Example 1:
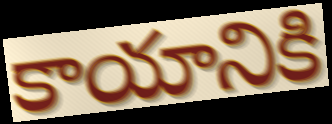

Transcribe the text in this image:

కాయానికి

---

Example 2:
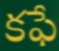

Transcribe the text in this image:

కఫే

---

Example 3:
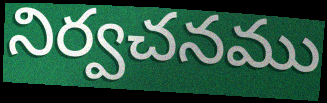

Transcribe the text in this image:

నిర్వచనము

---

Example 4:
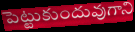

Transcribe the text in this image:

పెట్టుకుందువుగాని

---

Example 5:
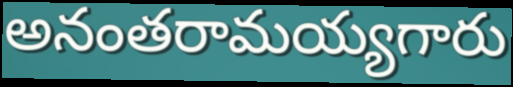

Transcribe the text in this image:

అనంతరామయ్యగారు